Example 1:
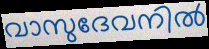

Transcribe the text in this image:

വാസുദേവനിൽ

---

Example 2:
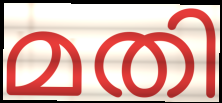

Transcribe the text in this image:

മതി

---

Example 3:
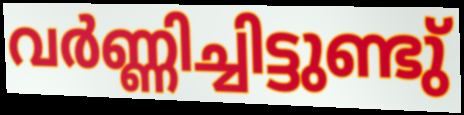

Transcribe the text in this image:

വർണ്ണിച്ചിട്ടുണ്ടു്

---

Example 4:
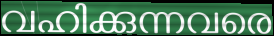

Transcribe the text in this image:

വഹിക്കുന്നവരെ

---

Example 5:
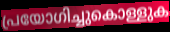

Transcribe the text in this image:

പ്രയോഗിച്ചുകൊള്ളുക